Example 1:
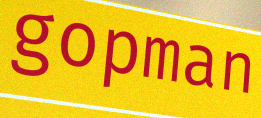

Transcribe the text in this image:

gopman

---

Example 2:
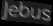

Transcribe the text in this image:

Jebus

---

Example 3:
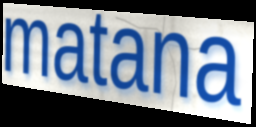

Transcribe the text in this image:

matana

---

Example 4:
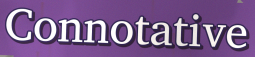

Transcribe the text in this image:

Connotative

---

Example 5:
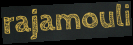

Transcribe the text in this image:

rajamouli